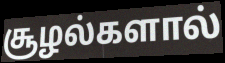
சூழல்களால்